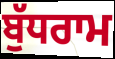
ਬੁੱਧਰਾਮ